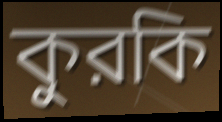
কুরকি